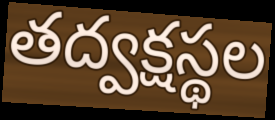
తద్వక్షస్థల